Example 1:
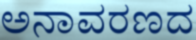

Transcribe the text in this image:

ಅನಾವರಣದ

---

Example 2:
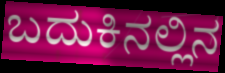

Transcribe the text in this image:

ಬದುಕಿನಲ್ಲಿನ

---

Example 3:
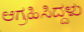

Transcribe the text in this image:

ಆಗ್ರಹಿಸಿದ್ದಳು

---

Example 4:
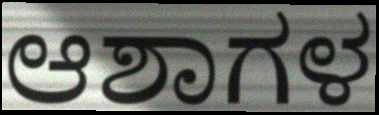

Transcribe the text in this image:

ಆಶಾಗಳ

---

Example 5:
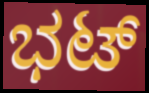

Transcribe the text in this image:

ಭಟ್